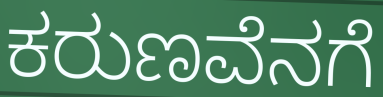
ಕರುಣವೆನಗೆ